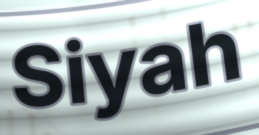
Siyah